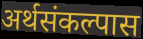
अर्थसंकल्पास